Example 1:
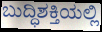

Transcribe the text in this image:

ಬುದ್ಧಿಶಕ್ತಿಯಲ್ಲಿ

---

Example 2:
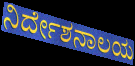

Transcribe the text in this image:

ನಿರ್ದೇಶನಾಲಯ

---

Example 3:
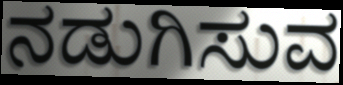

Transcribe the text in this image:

ನಡುಗಿಸುವ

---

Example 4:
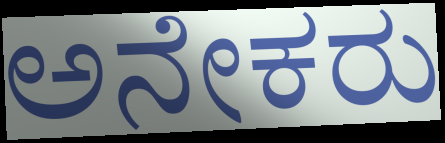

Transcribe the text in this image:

ಅನೇಕರು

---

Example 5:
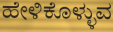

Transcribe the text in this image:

ಹೇಳಿಕೊಳ್ಳುವ